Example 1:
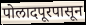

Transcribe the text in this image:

पोलादपूरपासून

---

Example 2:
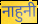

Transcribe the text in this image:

नाहुनी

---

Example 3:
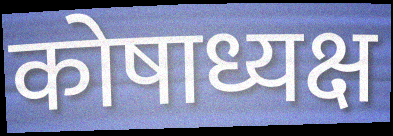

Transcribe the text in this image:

कोषाध्यक्ष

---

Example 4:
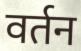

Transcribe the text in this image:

वर्तन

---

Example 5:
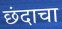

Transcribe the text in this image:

छंदाचा